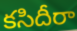
కసిదీరా